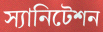
স্যানিটেশন